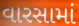
વારસામાં